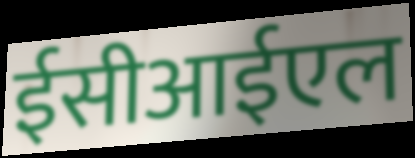
ईसीआईएल